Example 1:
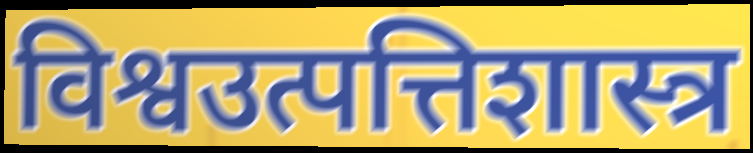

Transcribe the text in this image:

विश्वउत्पत्तिशास्त्र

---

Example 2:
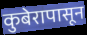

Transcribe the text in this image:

कुबेरापासून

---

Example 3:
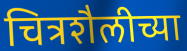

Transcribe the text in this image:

चित्रशैलीच्या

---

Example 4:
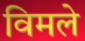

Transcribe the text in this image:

विमले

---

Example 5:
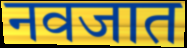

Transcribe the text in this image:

नवजात